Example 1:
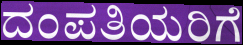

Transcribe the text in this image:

ದಂಪತಿಯರಿಗೆ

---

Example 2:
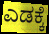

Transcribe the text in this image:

ಎಡಕ್ಕೆ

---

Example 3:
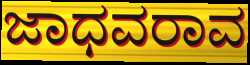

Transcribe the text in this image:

ಜಾಧವರಾವ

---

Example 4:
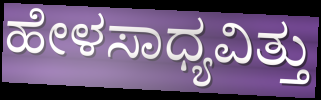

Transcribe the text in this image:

ಹೇಳಸಾಧ್ಯವಿತ್ತು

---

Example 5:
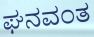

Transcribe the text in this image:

ಘನವಂತ